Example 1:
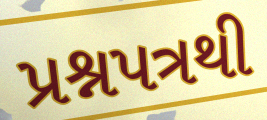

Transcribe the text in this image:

પ્રશ્નપત્રથી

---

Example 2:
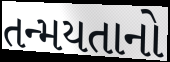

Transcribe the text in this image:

તન્મયતાનો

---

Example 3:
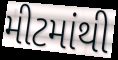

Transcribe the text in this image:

મીટમાંથી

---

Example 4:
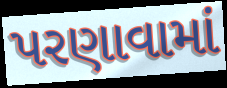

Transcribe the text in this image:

પરણાવામાં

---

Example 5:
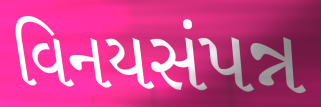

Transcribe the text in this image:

વિનયસંપન્ન